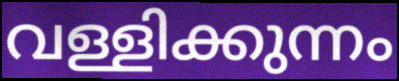
വള്ളിക്കുന്നം